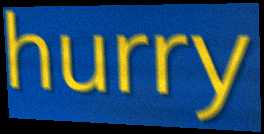
hurry